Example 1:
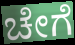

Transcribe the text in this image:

ಚೇಗೆ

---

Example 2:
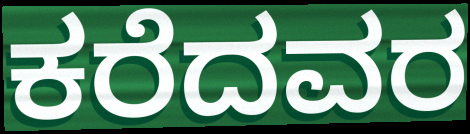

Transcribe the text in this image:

ಕರೆದವರ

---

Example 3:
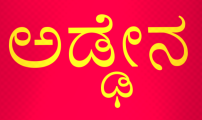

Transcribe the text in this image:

ಅಡ್ಢೇನ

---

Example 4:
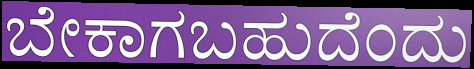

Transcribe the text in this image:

ಬೇಕಾಗಬಹುದೆಂದು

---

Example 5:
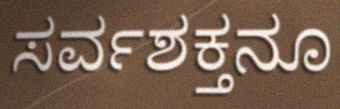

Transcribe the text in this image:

ಸರ್ವಶಕ್ತನೂ